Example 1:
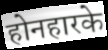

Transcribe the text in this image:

होनहारके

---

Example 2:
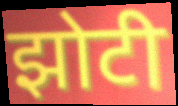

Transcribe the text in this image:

झोटी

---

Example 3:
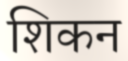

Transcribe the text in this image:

शिकन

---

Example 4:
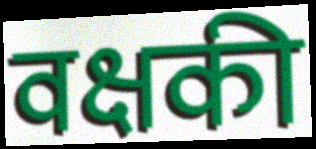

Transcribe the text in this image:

वक्षकी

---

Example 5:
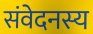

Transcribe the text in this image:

संवेदनस्य